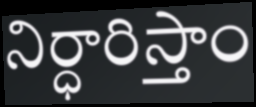
నిర్ధారిస్తాం